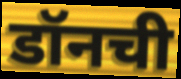
डॉनची